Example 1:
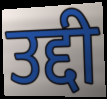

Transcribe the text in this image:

उद्दी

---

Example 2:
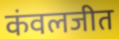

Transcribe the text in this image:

कंवलजीत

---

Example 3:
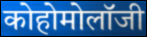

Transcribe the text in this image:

कोहोमोलॉजी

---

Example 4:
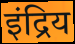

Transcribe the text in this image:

इंद्रिय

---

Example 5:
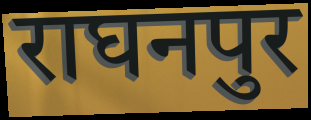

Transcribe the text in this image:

राघनपुर